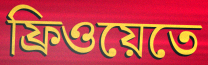
ফ্রিওয়েতে